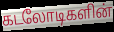
கடலோடிகளின்